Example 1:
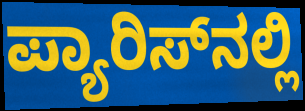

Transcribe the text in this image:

ಪ್ಯಾರಿಸ್‌ನಲ್ಲಿ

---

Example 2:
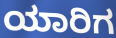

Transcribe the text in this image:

ಯಾರಿಗ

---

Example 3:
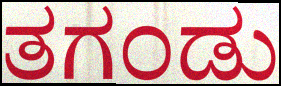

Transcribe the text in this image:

ತಗಂಡು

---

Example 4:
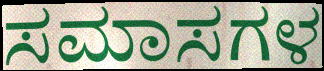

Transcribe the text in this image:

ಸಮಾಸಗಳ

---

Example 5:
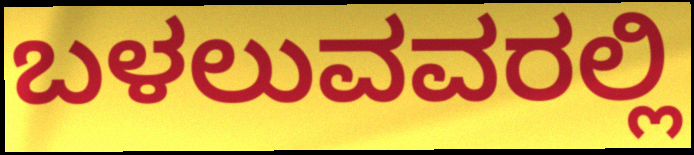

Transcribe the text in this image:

ಬಳಲುವವರಲ್ಲಿ